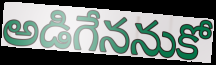
అడిగేననుకో